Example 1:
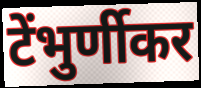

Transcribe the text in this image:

टेंभुर्णीकर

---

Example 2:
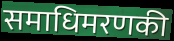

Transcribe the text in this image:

समाधिमरणकी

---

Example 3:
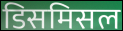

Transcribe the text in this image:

डिसमिसल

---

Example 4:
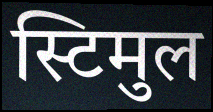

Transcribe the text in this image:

स्टिमुल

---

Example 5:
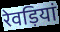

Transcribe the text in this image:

रेवड़ियां